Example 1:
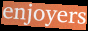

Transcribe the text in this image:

enjoyers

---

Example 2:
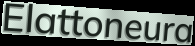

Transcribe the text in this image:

Elattoneura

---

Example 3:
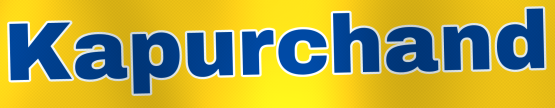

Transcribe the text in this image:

Kapurchand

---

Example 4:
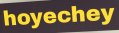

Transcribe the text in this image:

hoyechey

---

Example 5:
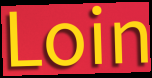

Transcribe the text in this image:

Loin